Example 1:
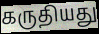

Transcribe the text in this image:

கருதியது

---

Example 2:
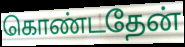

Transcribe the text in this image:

கொண்டதேன்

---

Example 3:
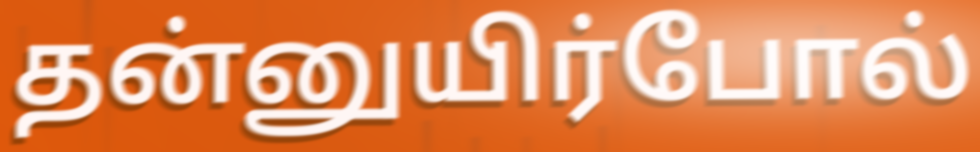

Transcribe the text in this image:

தன்னுயிர்போல்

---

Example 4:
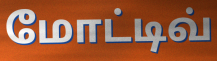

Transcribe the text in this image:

மோட்டிவ்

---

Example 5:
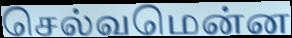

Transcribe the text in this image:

செல்வமென்ன